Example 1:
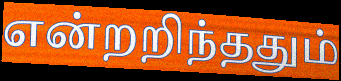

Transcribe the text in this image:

என்றறிந்ததும்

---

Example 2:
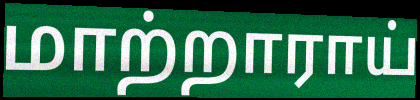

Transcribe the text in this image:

மாற்றாராய்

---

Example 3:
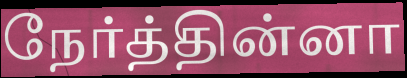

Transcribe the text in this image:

நேர்த்தின்னா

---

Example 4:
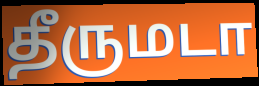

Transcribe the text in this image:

தீருமடா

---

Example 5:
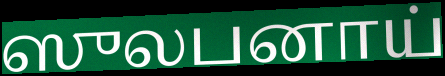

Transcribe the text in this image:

ஸுலபனாய்